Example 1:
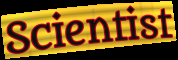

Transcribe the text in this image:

Scientist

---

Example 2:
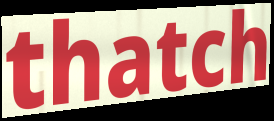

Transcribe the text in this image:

thatch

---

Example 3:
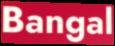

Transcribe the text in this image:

Bangal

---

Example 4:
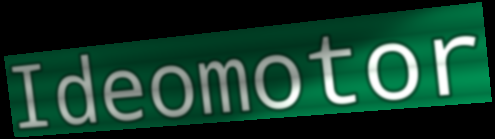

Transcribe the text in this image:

Ideomotor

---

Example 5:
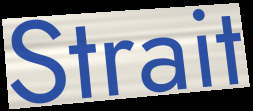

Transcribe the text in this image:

Strait